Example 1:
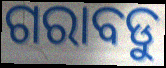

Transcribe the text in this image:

ଗରାବଡୁ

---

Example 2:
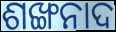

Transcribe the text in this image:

ଶଙ୍ଖନାଦ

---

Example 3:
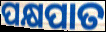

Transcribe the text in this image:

ପକ୍ଷପାତ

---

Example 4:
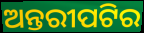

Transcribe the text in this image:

ଅନ୍ତରୀପଟିର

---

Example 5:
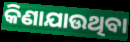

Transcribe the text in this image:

କିଣାଯାଉଥିବା